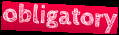
obligatory